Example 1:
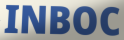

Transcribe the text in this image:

INBOC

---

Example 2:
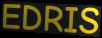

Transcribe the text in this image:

EDRIS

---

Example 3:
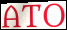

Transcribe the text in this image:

ATO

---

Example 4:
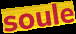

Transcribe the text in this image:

soule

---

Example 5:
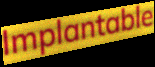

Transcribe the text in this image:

Implantable